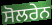
ਸੋਲਰੇਨ